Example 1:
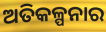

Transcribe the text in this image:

ଅତିକଳ୍ପନାର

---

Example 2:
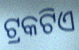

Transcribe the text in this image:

ଟ୍ରକଟିଏ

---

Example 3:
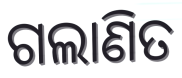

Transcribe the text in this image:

ଗଲାଣିତ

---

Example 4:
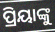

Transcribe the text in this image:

ପ୍ରିୟାଙ୍କୁ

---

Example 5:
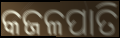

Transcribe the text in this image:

କଜଳପାତି